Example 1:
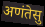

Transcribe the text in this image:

अणंतेसु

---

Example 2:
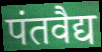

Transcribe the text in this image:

पंतवैद्य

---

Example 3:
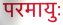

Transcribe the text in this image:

परमायुः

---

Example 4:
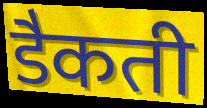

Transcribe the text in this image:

डैकती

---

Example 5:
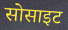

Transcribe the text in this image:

सोसाइट